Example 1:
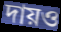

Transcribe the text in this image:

দায়ও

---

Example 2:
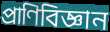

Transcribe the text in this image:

প্রাণিবিজ্ঞান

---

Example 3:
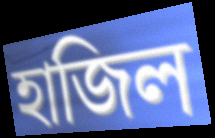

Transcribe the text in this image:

হাজিল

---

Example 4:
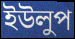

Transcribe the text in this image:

ইউলুপ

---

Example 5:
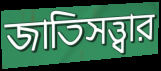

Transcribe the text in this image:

জাতিসত্ত্বার